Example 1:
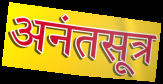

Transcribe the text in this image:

अनंतसूत्र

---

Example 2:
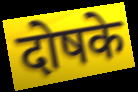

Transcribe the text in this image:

दोषके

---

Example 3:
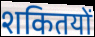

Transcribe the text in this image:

शकितयों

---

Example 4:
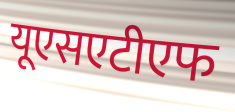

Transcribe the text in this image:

यूएसएटीएफ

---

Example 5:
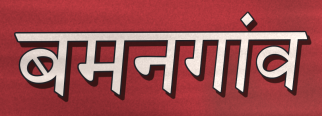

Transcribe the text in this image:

बमनगांव